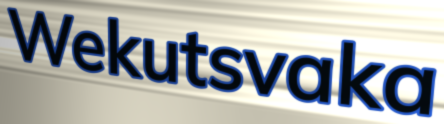
Wekutsvaka